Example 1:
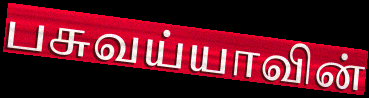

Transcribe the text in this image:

பசுவய்யாவின்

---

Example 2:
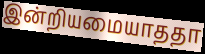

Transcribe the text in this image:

இன்றியமையாததா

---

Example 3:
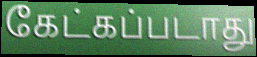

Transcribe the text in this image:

கேட்கப்படாது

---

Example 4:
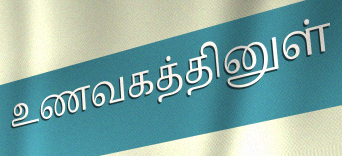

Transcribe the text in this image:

உணவகத்தினுள்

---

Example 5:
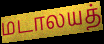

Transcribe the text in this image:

மடாலயத்